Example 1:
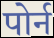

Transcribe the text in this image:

पोर्न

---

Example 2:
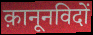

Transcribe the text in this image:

क़ानूनविदों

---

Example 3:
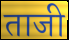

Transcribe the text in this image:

ताजी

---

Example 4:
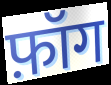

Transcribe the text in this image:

फ़ॉग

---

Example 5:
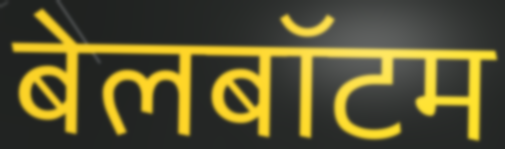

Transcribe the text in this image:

बेलबॉटम